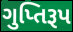
ગુપ્તિરૂપ